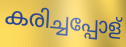
കരിച്ചപ്പോള്